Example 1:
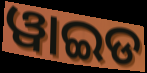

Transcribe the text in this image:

ୱାଇଡ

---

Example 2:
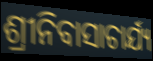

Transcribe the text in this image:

ଶ୍ରୀନିବାସାଚାର୍ଯ୍ୟ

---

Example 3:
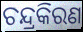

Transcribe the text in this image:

ଚନ୍ଦ୍ରକିରଣ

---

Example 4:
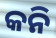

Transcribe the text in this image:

କନି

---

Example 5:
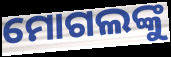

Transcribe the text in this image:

ମୋଗଲଙ୍କୁ